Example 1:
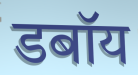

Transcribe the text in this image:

डबॉय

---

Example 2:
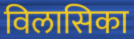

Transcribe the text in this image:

विलासिका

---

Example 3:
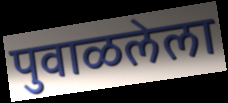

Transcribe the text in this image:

पुवाळलेला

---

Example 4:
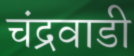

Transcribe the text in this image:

चंद्रवाडी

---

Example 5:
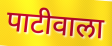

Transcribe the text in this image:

पाटीवाला